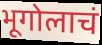
भूगोलाचं